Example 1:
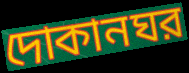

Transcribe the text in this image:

দোকানঘর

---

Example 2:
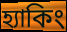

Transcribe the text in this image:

হ্যাকিং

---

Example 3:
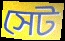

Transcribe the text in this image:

সেট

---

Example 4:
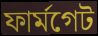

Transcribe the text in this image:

ফার্মগেট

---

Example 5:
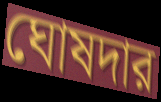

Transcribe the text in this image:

ঘোষদার